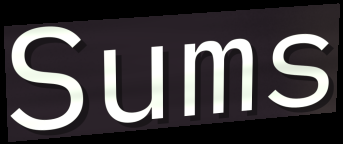
Sums